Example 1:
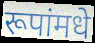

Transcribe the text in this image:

रूपांमधे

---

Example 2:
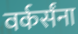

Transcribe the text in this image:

वर्कर्संना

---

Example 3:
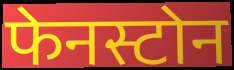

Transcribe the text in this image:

फेनस्टोन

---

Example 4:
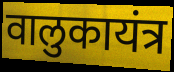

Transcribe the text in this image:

वालुकायंत्र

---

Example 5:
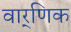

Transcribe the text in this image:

वार्णिक